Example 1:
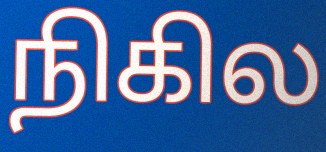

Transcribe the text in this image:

நிகில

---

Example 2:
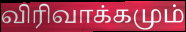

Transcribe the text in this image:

விரிவாக்கமும்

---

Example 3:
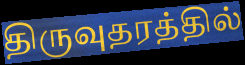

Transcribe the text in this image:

திருவுதரத்தில்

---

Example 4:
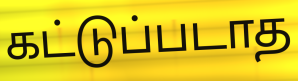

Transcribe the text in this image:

கட்டுப்படாத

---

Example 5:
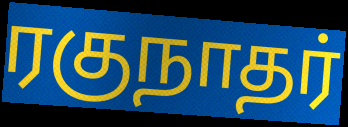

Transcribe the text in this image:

ரகுநாதர்